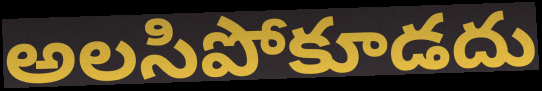
అలసిపోకూడదు